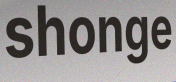
shonge